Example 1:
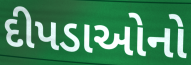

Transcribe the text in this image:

દીપડાઓનો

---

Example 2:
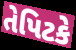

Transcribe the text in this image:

તેપિટકે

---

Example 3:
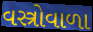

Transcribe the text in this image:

વસ્ત્રોવાળા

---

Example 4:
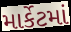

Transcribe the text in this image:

માર્કેટમાં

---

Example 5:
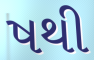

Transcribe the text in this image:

ષથી